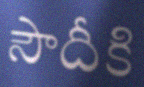
సౌదీకి